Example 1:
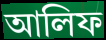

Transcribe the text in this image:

আলিফ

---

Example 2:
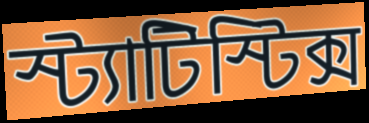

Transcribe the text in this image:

স্ট্যাটিস্টিক্স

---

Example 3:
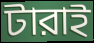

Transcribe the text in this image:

টারাই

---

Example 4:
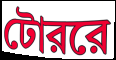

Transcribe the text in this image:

টোররে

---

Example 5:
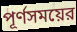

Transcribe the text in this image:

পূর্ণসময়ের